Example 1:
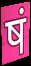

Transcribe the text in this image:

षं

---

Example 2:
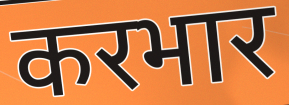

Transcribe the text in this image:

करभार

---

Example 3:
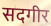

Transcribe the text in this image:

सदगीर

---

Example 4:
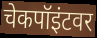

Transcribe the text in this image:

चेकपॉइंटवर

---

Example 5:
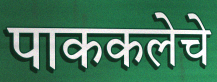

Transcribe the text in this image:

पाककलेचे